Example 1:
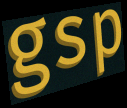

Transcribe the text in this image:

gsp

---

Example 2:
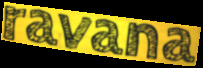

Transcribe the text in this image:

ravana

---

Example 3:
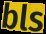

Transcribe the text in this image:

bls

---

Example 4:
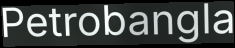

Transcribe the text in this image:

Petrobangla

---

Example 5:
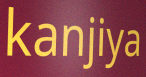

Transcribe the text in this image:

kanjiya